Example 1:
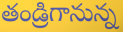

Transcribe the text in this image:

తండ్రిగానున్న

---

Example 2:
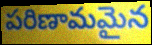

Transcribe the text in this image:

పరిణామమైన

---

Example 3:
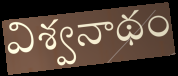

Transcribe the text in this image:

విశ్వనాథం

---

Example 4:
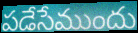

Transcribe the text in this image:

పడేసేముందు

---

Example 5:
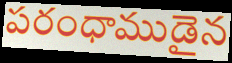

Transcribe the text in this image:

పరంధాముడైన